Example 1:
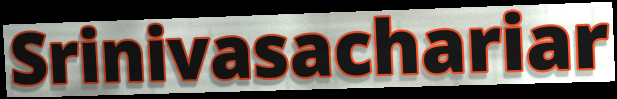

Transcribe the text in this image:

Srinivasachariar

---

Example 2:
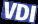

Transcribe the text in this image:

VDI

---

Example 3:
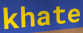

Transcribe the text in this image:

khate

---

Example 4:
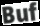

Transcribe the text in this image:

Buf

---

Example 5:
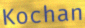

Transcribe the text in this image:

Kochan